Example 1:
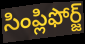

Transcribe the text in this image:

సింప్లిఫోర్జ్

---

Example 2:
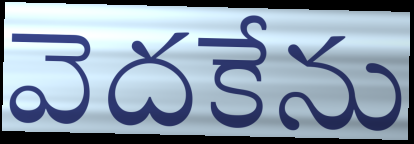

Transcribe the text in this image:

వెదకేను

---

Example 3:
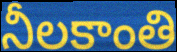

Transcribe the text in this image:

నీలకాంతి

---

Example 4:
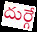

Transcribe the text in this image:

దుర్గే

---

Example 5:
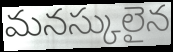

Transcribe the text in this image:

మనస్కులైన